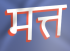
मत्त